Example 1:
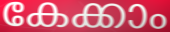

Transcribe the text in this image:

കേക്കാം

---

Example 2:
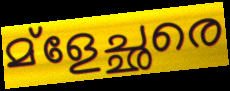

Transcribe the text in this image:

മ്ളേച്ഛരെ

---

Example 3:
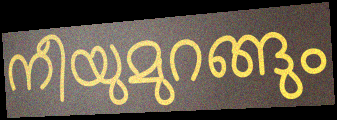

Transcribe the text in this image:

നീയുമുറങ്ങും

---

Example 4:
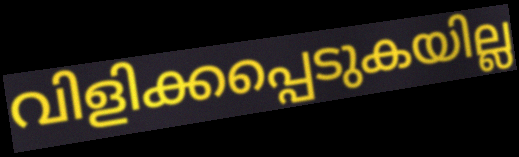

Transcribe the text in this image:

വിളിക്കപ്പെടുകയില്ല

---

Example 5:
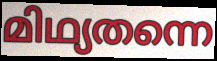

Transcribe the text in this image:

മിഥ്യതന്നെ